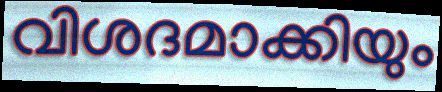
വിശദമാക്കിയും